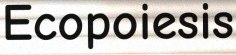
Ecopoiesis